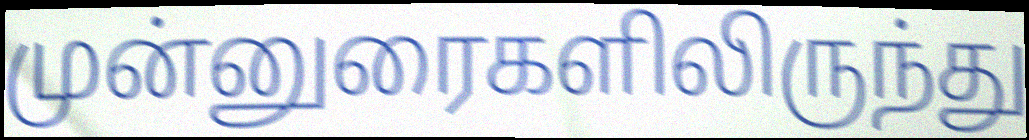
முன்னுரைகளிலிருந்து